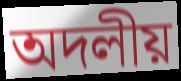
অদলীয়